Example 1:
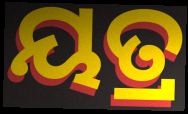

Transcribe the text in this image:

ୟତ୍ର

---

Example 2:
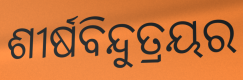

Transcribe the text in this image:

ଶୀର୍ଷବିନ୍ଦୁତ୍ରୟର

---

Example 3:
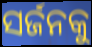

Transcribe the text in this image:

ସର୍ଜନକୁ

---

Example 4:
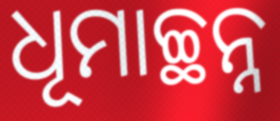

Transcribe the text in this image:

ଧୂମାଚ୍ଛନ୍ନ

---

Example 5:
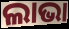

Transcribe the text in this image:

ଲାଭା